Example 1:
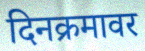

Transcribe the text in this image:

दिनक्रमावर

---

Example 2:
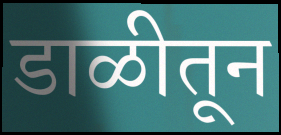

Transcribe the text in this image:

डाळीतून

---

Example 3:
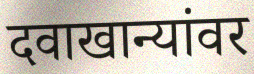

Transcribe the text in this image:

दवाखान्यांवर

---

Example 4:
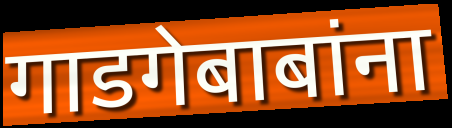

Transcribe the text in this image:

गाडगेबाबांना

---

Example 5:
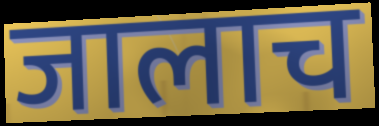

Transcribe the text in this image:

जालाच